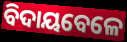
ବିଦାୟବେଳେ